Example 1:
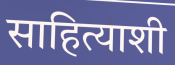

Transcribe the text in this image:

साहित्याशी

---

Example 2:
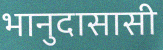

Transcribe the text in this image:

भानुदासासी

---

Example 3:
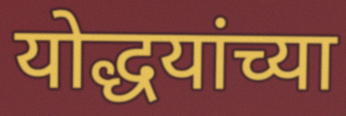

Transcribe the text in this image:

योद्धयांच्या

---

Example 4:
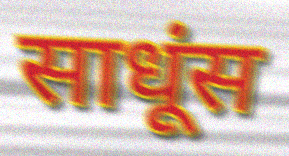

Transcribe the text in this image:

साधूंस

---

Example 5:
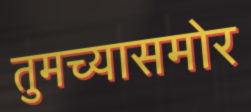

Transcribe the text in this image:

तुमच्यासमोर